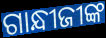
ଗାନ୍ଧୀଜୀଙ୍କ